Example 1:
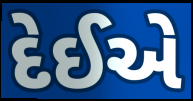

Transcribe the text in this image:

દેઈએ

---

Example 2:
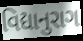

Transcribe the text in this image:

વિદ્યાનુરાગ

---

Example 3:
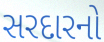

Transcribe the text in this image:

સરદારનો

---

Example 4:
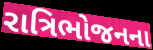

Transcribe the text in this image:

રાત્રિભોજનના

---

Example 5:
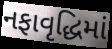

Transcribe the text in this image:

નફાવૃદ્ધિમાં